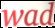
wad